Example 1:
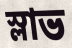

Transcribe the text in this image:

স্লাভ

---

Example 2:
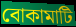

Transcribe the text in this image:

বোকামাটি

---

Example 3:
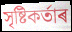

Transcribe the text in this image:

সৃষ্টিকৰ্তাৰ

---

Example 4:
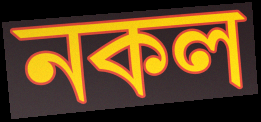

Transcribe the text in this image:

নকল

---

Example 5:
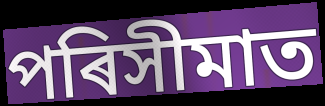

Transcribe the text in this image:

পৰিসীমাত